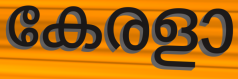
കേരളാ